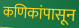
कणिकांपासून